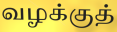
வழக்குத்